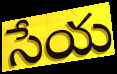
సేయ